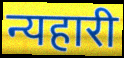
न्यहारी